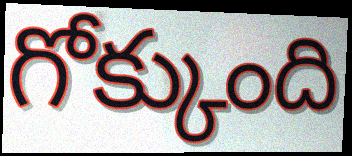
గోక్కుంది